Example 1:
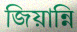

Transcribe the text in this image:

জিয়ান্নি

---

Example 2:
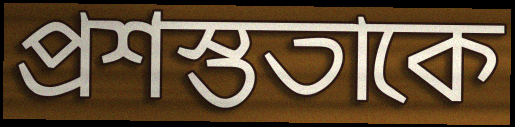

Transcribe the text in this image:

প্রশস্ততাকে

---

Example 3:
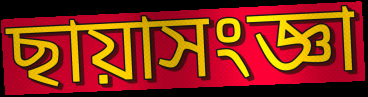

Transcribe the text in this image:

ছায়াসংজ্ঞা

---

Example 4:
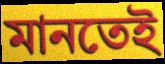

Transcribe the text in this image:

মানতেই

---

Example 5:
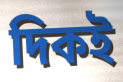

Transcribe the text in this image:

দিকই